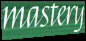
mastery